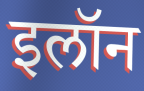
इलॉन